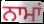
ਨਾਮਾਂ